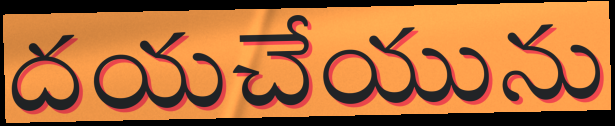
దయచేయును